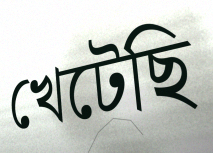
খেটেছি